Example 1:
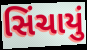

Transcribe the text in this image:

સિંચાયું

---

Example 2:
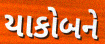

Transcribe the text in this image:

યાકોબને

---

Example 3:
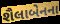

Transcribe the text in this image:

શૈલાબેનના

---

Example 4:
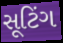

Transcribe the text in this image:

સૂટિંગ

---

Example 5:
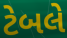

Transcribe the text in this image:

ટેબલે